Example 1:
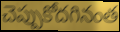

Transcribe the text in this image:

చెప్పుకోదగినంత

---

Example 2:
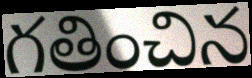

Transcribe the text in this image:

గతించిన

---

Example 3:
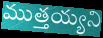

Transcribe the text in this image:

ముత్తయ్యని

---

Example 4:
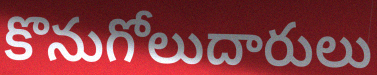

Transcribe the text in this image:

కొనుగోలుదారులు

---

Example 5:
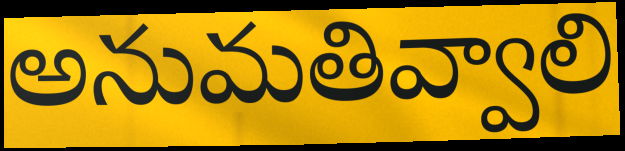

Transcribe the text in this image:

అనుమతివ్వాలి